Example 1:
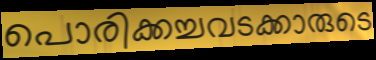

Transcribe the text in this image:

പൊരിക്കച്ചവടക്കാരുടെ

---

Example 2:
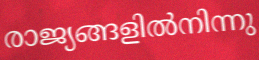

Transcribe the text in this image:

രാജ്യങ്ങളിൽനിന്നു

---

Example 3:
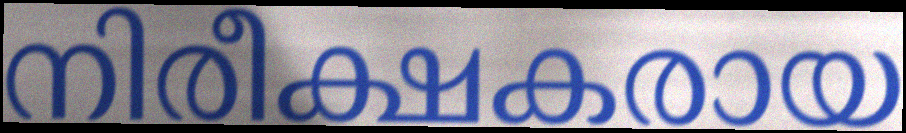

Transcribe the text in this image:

നിരീക്ഷകരായ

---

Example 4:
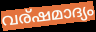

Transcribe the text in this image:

വര്ഷമാദ്യം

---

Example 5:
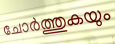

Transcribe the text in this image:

ചോർത്തുകയും